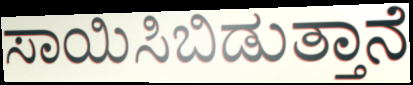
ಸಾಯಿಸಿಬಿಡುತ್ತಾನೆ